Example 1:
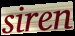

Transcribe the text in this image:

siren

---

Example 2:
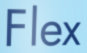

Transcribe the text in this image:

Flex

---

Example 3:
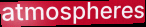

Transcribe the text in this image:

atmospheres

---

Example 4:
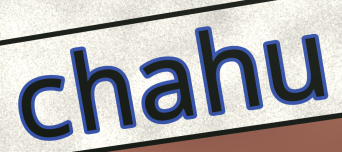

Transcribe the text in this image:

chahu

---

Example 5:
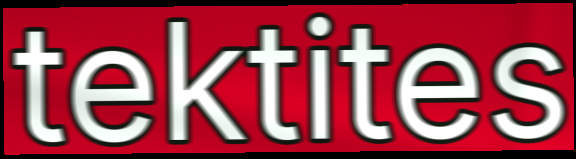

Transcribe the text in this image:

tektites